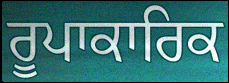
ਰੂਪਾਕਾਰਿਕ